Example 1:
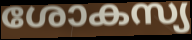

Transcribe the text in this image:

ശോകസ്യ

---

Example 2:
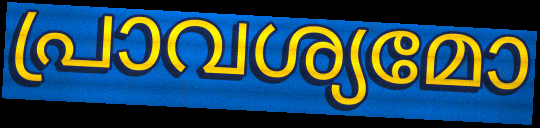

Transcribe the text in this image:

പ്രാവശ്യമോ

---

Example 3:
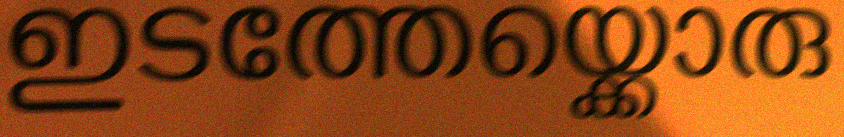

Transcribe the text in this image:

ഇടത്തേയ്ക്കൊരു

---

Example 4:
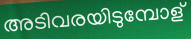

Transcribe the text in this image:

അടിവരയിടുമ്പോള്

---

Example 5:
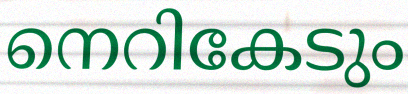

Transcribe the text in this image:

നെറികേടും